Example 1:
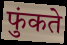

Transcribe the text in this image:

फुंकते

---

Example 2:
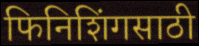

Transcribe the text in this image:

फिनिशिंगसाठी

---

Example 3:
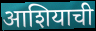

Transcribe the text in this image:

आशियाची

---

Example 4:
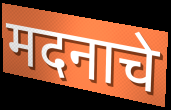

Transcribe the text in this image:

मदनाचे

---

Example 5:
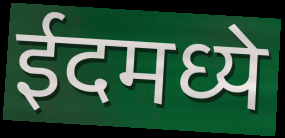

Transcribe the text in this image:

ईदमध्ये